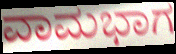
ವಾಮಭಾಗ